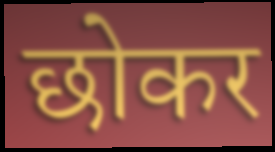
छोकर